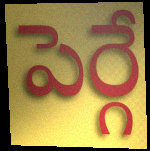
పెర్గే